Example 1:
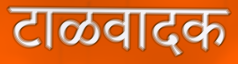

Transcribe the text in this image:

टाळवादक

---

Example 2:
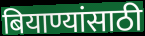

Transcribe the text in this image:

बियाण्यांसाठी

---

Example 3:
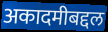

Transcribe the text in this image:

अकादमीबद्दल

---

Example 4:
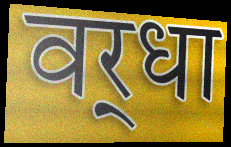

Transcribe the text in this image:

वर्धा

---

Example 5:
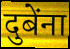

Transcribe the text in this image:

दुबेंना